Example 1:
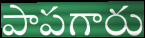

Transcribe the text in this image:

పాపగారు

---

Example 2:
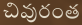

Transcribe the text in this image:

చివురంత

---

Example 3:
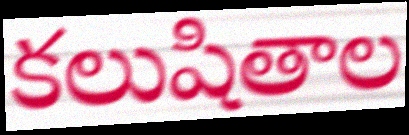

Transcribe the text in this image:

కలుషితాల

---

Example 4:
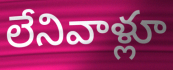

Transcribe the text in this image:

లేనివాళ్లూ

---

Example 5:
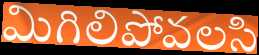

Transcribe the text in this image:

మిగిలిపోవలసి